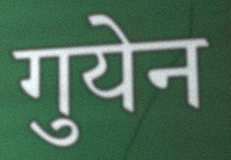
गुयेन